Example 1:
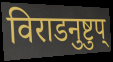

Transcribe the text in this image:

विराडनुष्टुप्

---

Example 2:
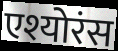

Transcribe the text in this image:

एश्योरंस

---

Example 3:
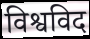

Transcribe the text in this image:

विश्वविद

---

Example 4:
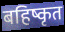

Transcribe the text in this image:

बहिष्कृत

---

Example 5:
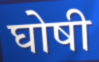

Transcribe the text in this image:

घोषी